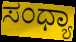
ಸಂಧ್ಯಾ